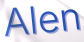
Alen